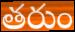
తరుం